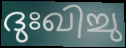
ദുഃഖിച്ചു